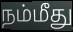
நம்மீது